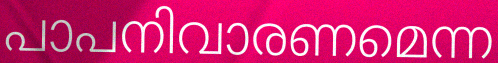
പാപനിവാരണമെന്ന